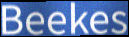
Beekes